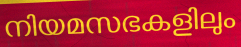
നിയമസഭകളിലും